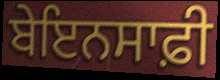
ਬੇਇਨਸਾਫ਼ੀ